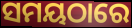
ସମୟଠାରେ